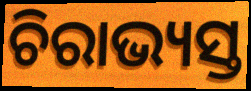
ଚିରାଭ୍ୟସ୍ତ